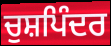
ਚੁਸ਼ਪਿੰਦਰ